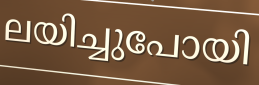
ലയിച്ചുപോയി